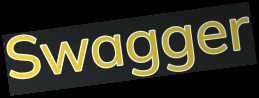
Swagger